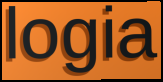
logia